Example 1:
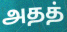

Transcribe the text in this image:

அதத்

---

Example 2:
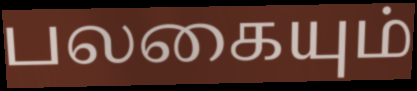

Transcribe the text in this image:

பலகையும்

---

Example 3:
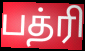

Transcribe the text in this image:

பத்ரி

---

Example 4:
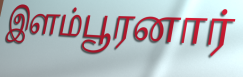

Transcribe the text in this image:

இளம்பூரனார்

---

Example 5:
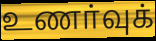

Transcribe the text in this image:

உணர்வுக்